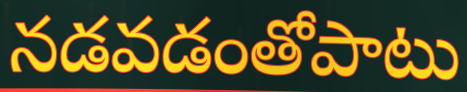
నడవడంతోపాటు